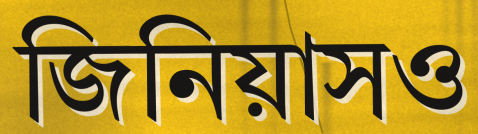
জিনিয়াসও